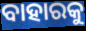
ବାହାରକୁ